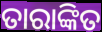
ତାରାଙ୍କିତ